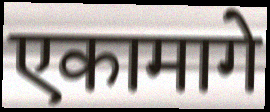
एकामागे